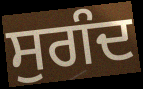
ਸੁਗੰਦ